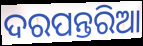
ଦରପନ୍ତରିଆ